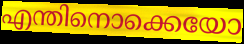
എന്തിനൊക്കെയോ